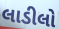
લાડીલો